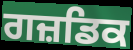
ਗਜ਼ਡਿਕ